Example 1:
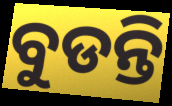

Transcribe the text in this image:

ବୁଡନ୍ତି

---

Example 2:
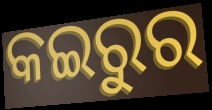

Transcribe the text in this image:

କଇରୁର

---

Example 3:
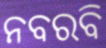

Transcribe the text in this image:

ନବରବି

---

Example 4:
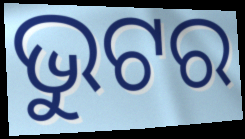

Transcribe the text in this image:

ଭୁଟର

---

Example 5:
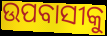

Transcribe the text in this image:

ଉପବାସୀକୁ